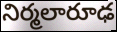
నిర్మలారూఢ